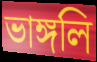
ভাঙ্গলি